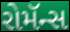
રોમૅન્સ